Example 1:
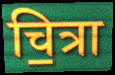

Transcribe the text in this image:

चि॒त्रा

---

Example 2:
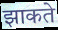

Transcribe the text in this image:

झाकते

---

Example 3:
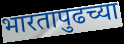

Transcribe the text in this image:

भारतापुढच्या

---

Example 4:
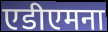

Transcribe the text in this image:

एडीएमना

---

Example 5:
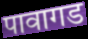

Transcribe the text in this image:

पावागड